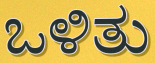
ಒಳಿತು